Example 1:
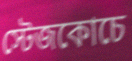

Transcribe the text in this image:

স্টেজকোচে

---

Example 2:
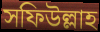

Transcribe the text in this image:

সফিউল্লাহ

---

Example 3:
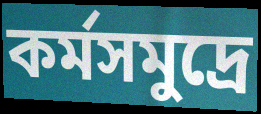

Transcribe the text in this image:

কর্মসমুদ্রে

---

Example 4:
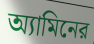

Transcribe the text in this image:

অ্যামিনের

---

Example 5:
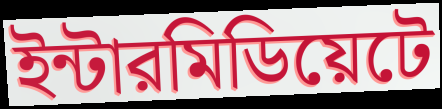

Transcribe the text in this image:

ইন্টারমিডিয়েটে